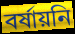
বর্ষায়নি